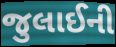
જુલાઈની